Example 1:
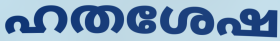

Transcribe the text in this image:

ഹതശേഷ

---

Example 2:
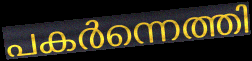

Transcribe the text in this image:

പകർന്നെത്തി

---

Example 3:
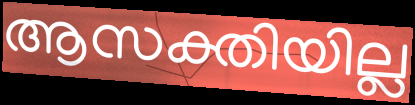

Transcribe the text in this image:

ആസക്തിയില്ല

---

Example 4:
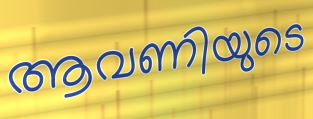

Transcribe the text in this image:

ആവണിയുടെ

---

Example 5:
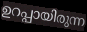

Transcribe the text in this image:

ഉറപ്പായിരുന്ന